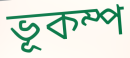
ভূকম্প